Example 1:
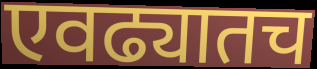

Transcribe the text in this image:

एवढ्यातच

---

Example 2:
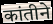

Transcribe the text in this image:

कांतीने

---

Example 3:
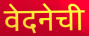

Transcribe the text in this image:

वेदनेची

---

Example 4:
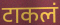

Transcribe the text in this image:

टाकलं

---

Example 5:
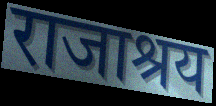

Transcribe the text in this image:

राजाश्रय